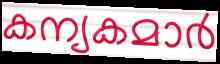
കന്യകമാർ